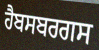
ਹੈਬਸਬਰਗਸ